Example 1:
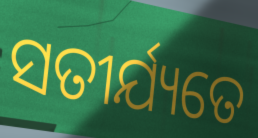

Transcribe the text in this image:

ସତୀର୍ଯ୍ୟତେ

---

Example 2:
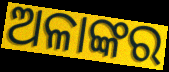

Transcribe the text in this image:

ଅଳାଙ୍କର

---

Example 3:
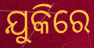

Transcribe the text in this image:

ଯୁକିରେ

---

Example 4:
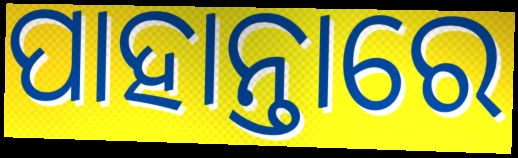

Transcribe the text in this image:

ପାହାନ୍ତାରେ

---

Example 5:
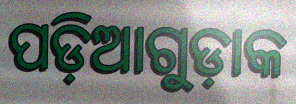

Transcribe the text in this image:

ପଡ଼ିଆଗୁଡ଼ାକ